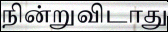
நின்றுவிடாது